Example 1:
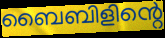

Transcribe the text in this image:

ബൈബിളിന്റെ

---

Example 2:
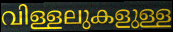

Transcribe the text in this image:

വിള്ളലുകളുള്ള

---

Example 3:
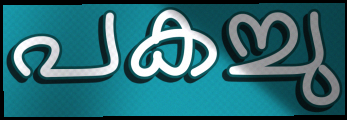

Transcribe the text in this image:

പകച്ചു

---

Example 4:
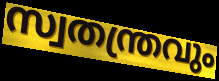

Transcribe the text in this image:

സ്വതന്ത്രവും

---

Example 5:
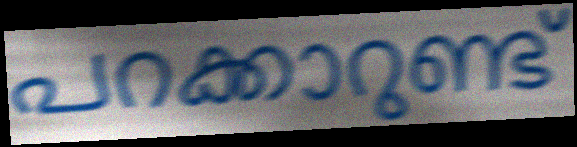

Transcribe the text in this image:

പറക്കാറുണ്ട്